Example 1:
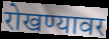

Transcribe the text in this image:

रोखण्यावर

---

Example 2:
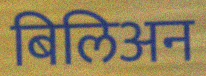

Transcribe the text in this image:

बिलिअन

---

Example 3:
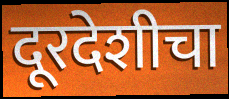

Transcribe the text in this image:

दूरदेशीचा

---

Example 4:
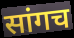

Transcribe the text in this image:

सांगच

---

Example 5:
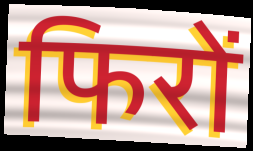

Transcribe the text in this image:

फिरों